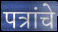
पत्रांचे